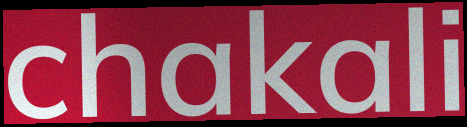
chakali